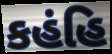
કહંહિ